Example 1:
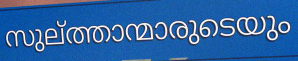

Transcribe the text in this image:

സുല്ത്താന്മാരുടെയും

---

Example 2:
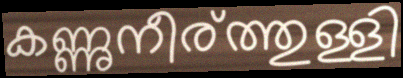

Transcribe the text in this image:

കണ്ണുനീര്ത്തുള്ളി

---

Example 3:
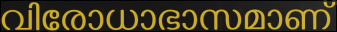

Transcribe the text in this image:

വിരോധാഭാസമാണ്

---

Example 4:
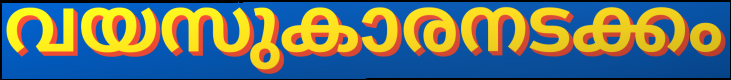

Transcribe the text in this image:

വയസുകാരനടക്കം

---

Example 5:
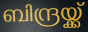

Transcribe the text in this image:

ബിന്ദ്രയ്ക്ക്